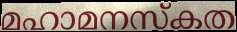
മഹാമനസ്കത